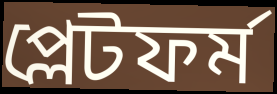
প্লেটফৰ্ম